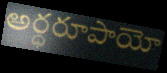
అర్ధరూపాయో